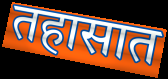
तहासात